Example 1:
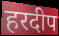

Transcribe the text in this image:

हरदीप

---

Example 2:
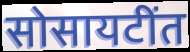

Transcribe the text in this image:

सोसायटींत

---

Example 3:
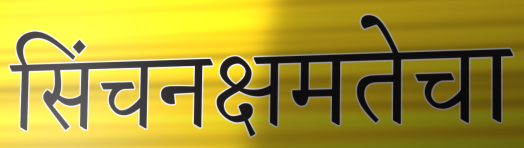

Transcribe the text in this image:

सिंचनक्षमतेचा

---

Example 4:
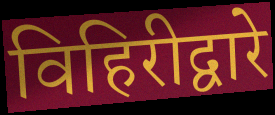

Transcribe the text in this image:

विहिरीद्वारे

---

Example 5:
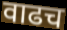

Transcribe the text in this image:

वाढच